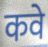
कवे